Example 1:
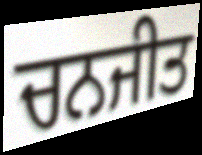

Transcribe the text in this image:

ਚਨਜੀਤ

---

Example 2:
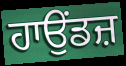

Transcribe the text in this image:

ਹਾਉਂਡਜ਼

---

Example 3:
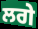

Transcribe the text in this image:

ਲਗੇ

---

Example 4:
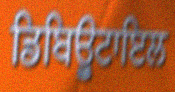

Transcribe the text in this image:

ਡਿਬਿਊਟਾਇਲ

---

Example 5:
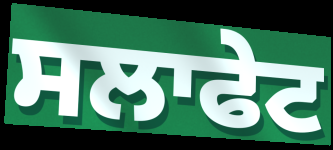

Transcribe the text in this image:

ਸਲਾਫੇਟ